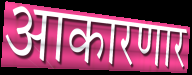
आकारणार